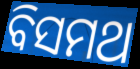
ବିସମଥ